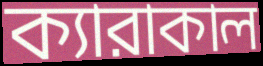
ক্যারাকাল